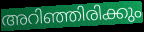
അറിഞ്ഞിരിക്കും